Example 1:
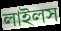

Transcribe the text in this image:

লাইলস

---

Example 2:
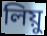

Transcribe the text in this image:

লিয়ু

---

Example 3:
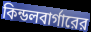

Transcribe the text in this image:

কিন্ডলবার্গারের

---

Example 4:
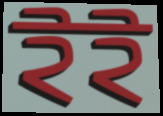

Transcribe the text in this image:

ইই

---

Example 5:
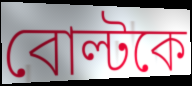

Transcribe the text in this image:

বোল্টকে